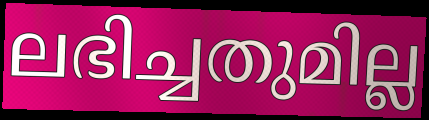
ലഭിച്ചതുമില്ല